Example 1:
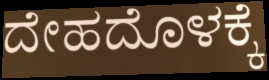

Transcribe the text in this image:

ದೇಹದೊಳಕ್ಕೆ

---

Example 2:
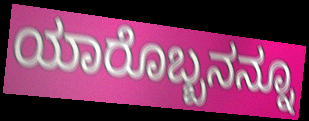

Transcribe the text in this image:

ಯಾರೊಬ್ಬನನ್ನೂ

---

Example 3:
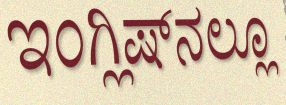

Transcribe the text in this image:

ಇಂಗ್ಲಿಷ್‌ನಲ್ಲೂ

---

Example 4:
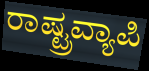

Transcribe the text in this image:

ರಾಷ್ಟ್ರವ್ಯಾಪಿ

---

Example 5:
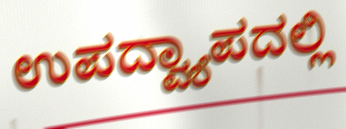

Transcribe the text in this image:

ಉಪದ್ವ್ಯಾಪದಲ್ಲಿ